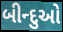
બીન્દુઓ